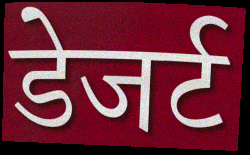
डेजर्ट